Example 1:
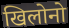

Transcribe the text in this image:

खिलोनो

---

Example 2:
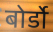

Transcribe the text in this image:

बोर्डो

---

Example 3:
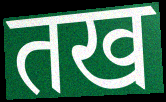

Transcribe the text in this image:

तख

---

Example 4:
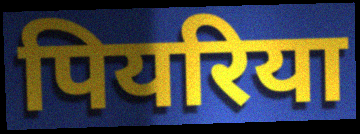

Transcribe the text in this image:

पियरिया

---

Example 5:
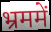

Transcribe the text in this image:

भ्रममें